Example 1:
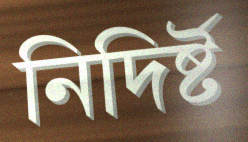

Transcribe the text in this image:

নিদিৰ্ষ্ট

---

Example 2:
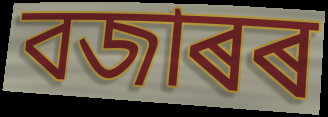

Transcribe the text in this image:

বজাৰৰ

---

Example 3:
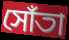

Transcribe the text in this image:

সোঁতা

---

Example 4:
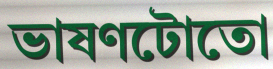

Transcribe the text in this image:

ভাষণটোতো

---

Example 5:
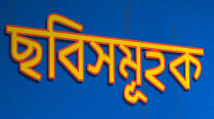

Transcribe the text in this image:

ছবিসমূহক